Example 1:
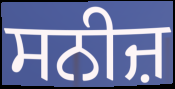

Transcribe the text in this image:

ਸਨੀਜ਼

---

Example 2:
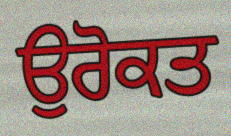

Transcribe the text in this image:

ਉਰੋਕਤ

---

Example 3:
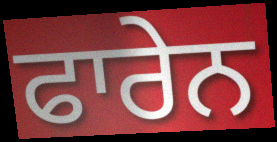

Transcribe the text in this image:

ਫਾਰੇਨ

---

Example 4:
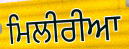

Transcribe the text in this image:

ਮਿਲੀਰੀਆ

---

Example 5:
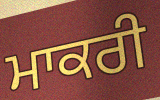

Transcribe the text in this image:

ਮਾਕਰੀ